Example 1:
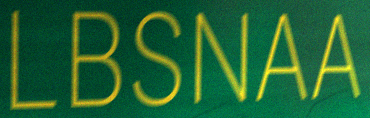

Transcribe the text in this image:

LBSNAA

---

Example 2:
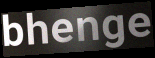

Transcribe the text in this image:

bhenge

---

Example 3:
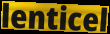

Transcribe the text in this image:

lenticel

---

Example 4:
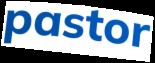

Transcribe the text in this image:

pastor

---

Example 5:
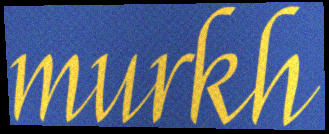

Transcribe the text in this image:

murkh